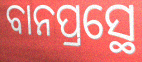
ବାନପ୍ରସ୍ଥେ